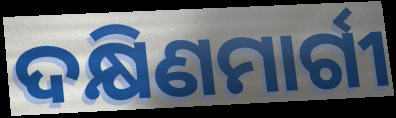
ଦକ୍ଷିଣମାର୍ଗୀ